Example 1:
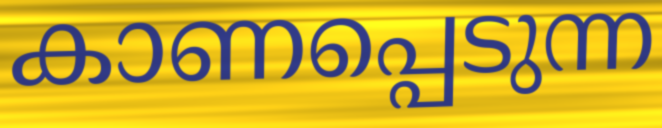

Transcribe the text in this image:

കാണപ്പെടുന്ന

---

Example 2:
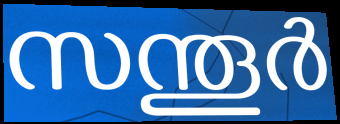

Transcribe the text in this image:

സന്തൂർ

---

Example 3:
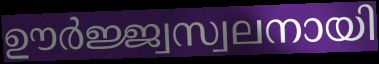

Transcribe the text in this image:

ഊർജ്ജ്വസ്വലനായി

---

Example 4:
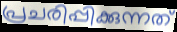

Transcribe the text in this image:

പ്രചരിപ്പിക്കുന്നത്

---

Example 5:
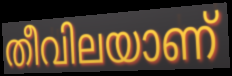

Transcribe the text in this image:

തീവിലയാണ്